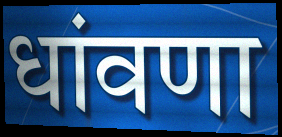
धांवणा